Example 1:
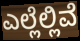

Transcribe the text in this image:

ಎಲ್ಲೆಲ್ಲಿವೆ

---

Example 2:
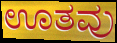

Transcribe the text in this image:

ಊತವು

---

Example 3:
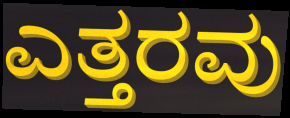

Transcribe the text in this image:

ಎತ್ತರವು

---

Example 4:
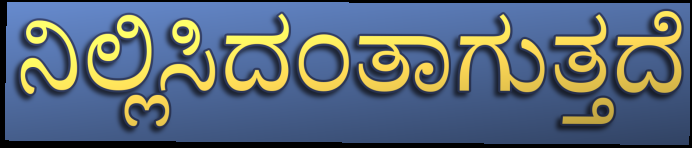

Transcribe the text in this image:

ನಿಲ್ಲಿಸಿದಂತಾಗುತ್ತದೆ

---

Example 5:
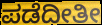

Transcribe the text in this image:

ಪಡೆದೀತೀ